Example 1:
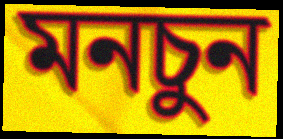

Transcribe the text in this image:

মনচুন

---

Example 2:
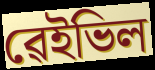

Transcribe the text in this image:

ৱেইভিল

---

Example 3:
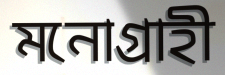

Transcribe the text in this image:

মনোগ্ৰাহী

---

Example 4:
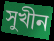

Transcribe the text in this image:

সুখীন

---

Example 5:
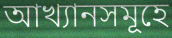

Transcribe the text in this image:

আখ্যানসমূহে